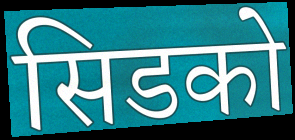
सिडको